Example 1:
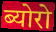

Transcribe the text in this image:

ब्योरो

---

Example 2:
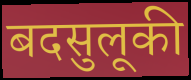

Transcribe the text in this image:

बदसुलूकी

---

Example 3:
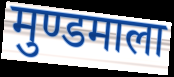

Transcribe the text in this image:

मुण्डमाला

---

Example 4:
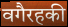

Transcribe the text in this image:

वगैरहकी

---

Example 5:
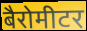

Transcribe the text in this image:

बैरोमीटर